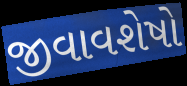
જીવાવશેષો